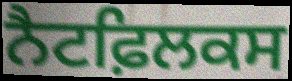
ਨੈਟਫ਼ਿਲਕਸ